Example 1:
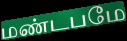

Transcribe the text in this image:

மண்டபமே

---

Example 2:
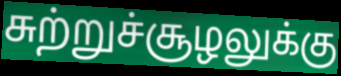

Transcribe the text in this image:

சுற்றுச்சூழலுக்கு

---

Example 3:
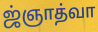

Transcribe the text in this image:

ஜ்ஞாத்வா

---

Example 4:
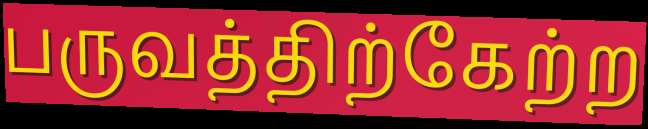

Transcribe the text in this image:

பருவத்திற்கேற்ற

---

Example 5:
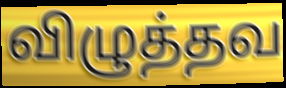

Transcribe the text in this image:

விழுத்தவ